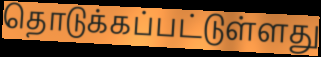
தொடுக்கப்பட்டுள்ளது